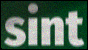
sint